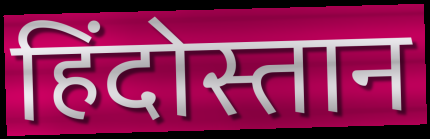
हिंदोस्तान